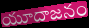
యూదాజనం